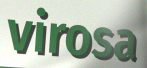
virosa